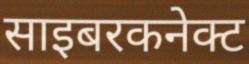
साइबरकनेक्ट